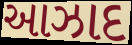
આઝાદ